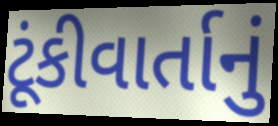
ટૂંકીવાર્તાનું